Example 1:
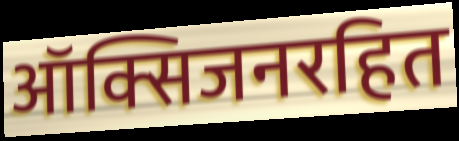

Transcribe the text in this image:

ऑक्सिजनरहित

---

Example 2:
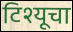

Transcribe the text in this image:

टिश्यूचा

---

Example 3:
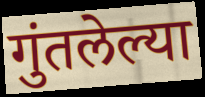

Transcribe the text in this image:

गुंतलेल्या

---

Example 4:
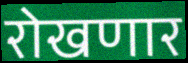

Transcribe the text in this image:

रोखणार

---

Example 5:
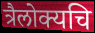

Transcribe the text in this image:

त्रैलोक्यचि